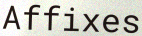
Affixes